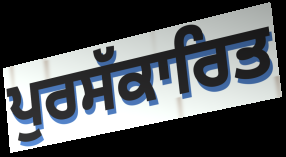
ਪੁਰਸੱਕਾਰਿਤ